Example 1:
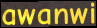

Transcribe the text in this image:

awanwi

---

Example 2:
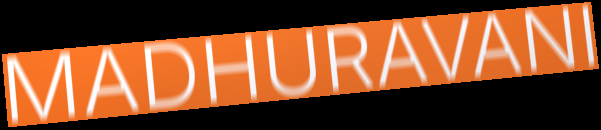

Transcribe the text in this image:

MADHURAVANI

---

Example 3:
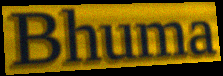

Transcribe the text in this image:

Bhuma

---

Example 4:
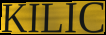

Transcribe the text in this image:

KILIC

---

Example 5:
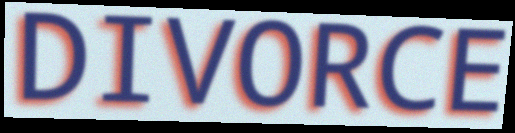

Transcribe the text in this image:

DIVORCE